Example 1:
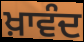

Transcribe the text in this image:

ਖ਼ਾਵੰਦ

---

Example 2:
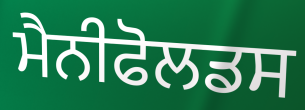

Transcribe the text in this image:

ਮੈਨੀਫੋਲਡਸ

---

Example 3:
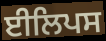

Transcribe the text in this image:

ਈਲਿਪਸ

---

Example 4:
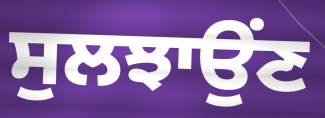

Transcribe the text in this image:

ਸੁਲਝਾਉਂਣ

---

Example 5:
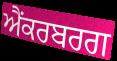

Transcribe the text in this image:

ਐਂਕਰਬਰਗ